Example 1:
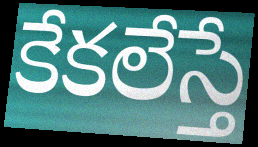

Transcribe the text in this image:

కేకలేస్తే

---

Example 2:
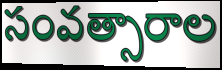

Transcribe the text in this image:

సంవత్సారాల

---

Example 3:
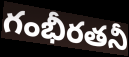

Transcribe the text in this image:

గంభీరతనీ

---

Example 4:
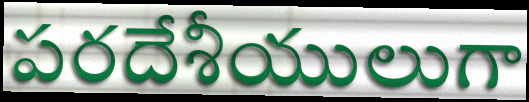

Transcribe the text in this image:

పరదేశీయులుగా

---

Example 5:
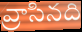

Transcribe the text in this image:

వ్రాసినది